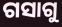
ଗସାଗୁ